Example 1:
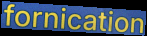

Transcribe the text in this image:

fornication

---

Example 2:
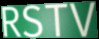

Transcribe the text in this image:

RSTV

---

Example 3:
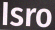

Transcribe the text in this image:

Isro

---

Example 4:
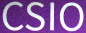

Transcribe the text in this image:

CSIO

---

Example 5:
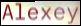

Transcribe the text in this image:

Alexey